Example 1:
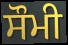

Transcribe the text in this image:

ਸੌਮੀ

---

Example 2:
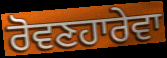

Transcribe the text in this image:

ਰੋਵਣਹਾਰੇਵਾ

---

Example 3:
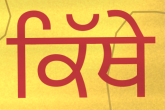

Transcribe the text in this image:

ਕਿੱਥੇ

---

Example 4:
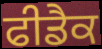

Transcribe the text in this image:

ਫੀਡੈਕ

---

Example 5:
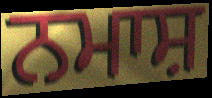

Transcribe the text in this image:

ਨਮਾਸ਼